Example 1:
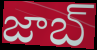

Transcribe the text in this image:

జాబ్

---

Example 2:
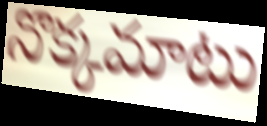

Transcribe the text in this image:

నొక్కమాటు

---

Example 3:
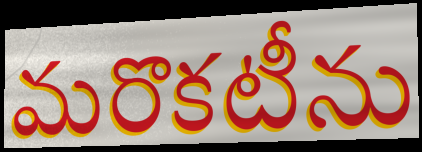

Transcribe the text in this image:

మరొకటీను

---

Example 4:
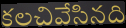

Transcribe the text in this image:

కలచివేసినది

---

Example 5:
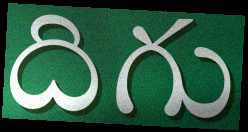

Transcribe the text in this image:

దిగు